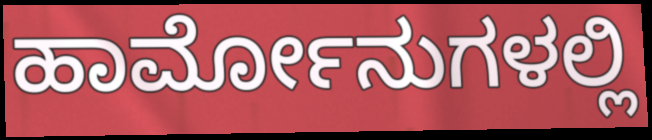
ಹಾರ್ಮೋನುಗಳಲ್ಲಿ